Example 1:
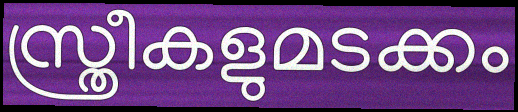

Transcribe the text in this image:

സ്ത്രീകളുമടക്കം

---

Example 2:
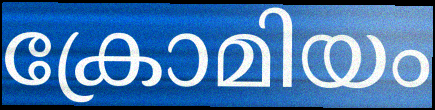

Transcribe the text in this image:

ക്രോമിയം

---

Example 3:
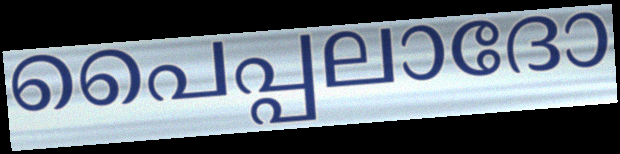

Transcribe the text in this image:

പൈപ്പലാദോ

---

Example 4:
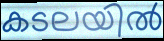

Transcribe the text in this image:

കടലയിൽ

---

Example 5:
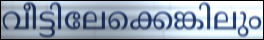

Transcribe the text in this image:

വീട്ടിലേക്കെങ്കിലും